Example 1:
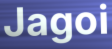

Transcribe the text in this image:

Jagoi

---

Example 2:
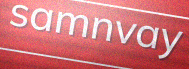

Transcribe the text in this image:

samnvay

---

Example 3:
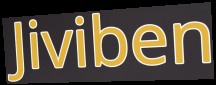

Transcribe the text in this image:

Jiviben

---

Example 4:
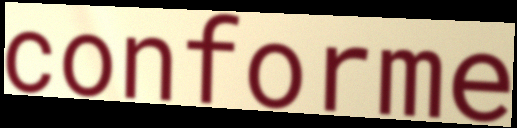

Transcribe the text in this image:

conforme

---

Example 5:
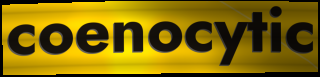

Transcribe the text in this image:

coenocytic